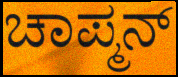
ಚಾಪ್ಮನ್